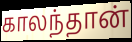
காலந்தான்